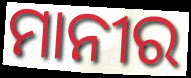
ମାନୀର